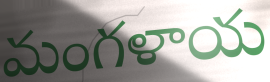
మంగళాయ